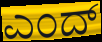
ಎಂದ್